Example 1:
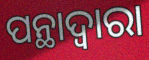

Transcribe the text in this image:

ପନ୍ଥାଦ୍ୱାରା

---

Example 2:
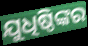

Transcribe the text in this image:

ଯୁଧିଷ୍ଠିଙ୍କର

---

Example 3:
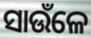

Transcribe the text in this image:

ସାଉଁଳେ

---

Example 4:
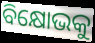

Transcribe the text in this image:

ବିକ୍ଷୋଭକୁ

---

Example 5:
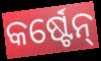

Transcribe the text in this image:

କର୍ଷ୍ଟେନ୍